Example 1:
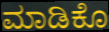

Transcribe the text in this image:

ಮಾಡಿಕೊ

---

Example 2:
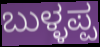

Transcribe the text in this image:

ಬುಳ್ಳಪ್ಪ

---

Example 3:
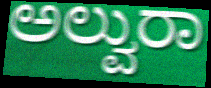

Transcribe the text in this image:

ಅಲ್ವುರಾ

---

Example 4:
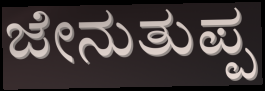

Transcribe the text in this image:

ಜೇನುತುಪ್ಪ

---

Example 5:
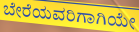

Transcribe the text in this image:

ಬೇರೆಯವರಿಗಾಗಿಯೇ